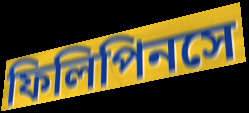
ফিলিপিনসে